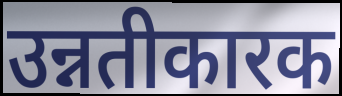
उन्नतीकारक